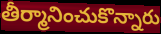
తీర్మానించుకొన్నారు